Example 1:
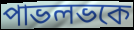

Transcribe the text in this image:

পাভলভকে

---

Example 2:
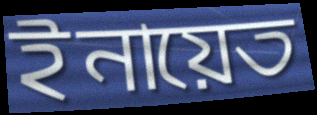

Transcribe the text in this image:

ইনায়েত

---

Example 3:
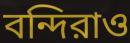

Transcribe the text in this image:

বন্দিরাও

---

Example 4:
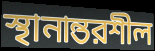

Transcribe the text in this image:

স্থানান্তরশীল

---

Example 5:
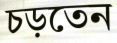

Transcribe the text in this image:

চড়তেন